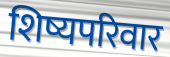
शिष्यपरिवार